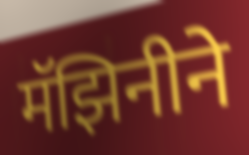
मॅझिनीने